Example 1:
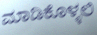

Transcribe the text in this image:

ಮಾಡಿಕೊಳ್ಳಲಿ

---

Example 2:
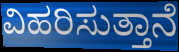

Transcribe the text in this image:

ವಿಹರಿಸುತ್ತಾನೆ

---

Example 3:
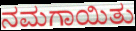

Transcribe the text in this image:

ನಮಗಾಯಿತು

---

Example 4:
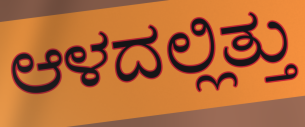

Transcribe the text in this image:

ಆಳದಲ್ಲಿತ್ತು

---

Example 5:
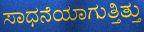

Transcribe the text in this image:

ಸಾಧನೆಯಾಗುತ್ತಿತ್ತು